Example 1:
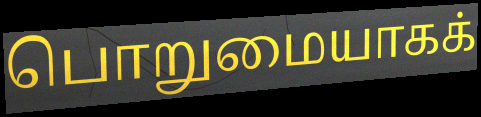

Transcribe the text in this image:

பொறுமையாகக்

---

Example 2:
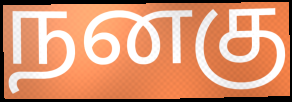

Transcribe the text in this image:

நனகு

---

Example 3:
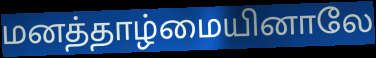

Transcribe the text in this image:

மனத்தாழ்மையினாலே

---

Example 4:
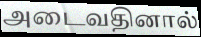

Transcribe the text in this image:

அடைவதினால்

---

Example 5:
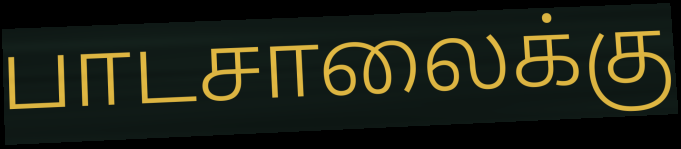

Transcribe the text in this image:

பாடசாலைக்கு